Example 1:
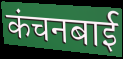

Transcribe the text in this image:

कंचनबाई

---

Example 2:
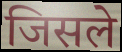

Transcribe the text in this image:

जिसले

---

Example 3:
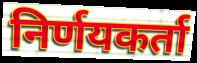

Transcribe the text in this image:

निर्णयकर्ता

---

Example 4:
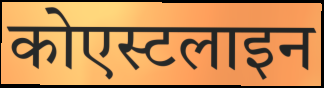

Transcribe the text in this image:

कोएस्टलाइन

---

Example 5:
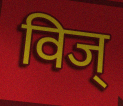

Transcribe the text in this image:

विज्